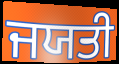
ਜਯਤੀ